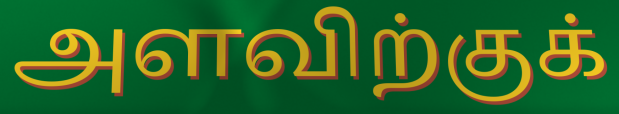
அளவிற்குக்